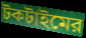
টকটাইমের